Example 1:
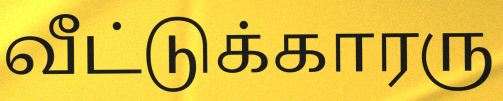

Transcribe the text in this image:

வீட்டுக்காரரு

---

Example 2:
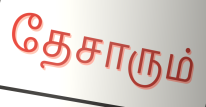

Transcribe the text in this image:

தேசாரும்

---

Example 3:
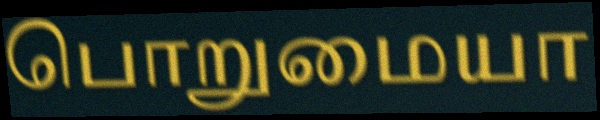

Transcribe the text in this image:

பொறுமையா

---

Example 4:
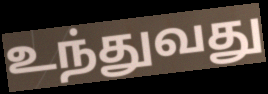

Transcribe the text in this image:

உந்துவது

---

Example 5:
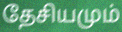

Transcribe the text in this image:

தேசியமும்